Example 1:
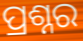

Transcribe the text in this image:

ପ୍ରଶ୍ନର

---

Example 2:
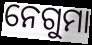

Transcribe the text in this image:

ନେଗୁମା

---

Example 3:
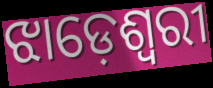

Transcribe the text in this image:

ଝାଡ଼େଶ୍ୱରୀ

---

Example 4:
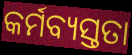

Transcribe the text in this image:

କର୍ମବ୍ୟସ୍ତତା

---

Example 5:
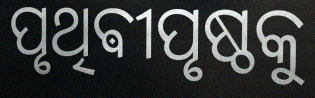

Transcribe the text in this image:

ପୃଥିଵୀପୃଷ୍ଠକୁ